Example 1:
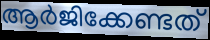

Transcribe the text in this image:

ആർജിക്കേണ്ടത്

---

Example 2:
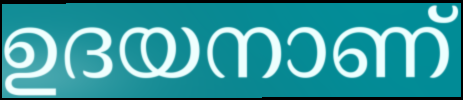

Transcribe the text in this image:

ഉദയനാണ്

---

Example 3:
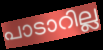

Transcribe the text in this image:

പാടാറില്ല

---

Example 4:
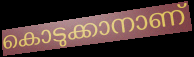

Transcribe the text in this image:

കൊടുക്കാനാണ്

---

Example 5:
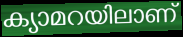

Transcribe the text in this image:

ക്യാമറയിലാണ്